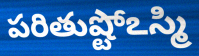
పరితుష్టోఽస్మి